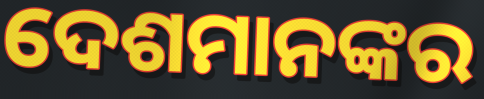
ଦେଶମାନଙ୍କର